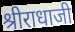
श्रीराधाजी